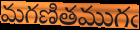
మగణితముగఁ